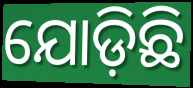
ଯୋଡ଼ିଛି